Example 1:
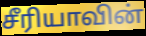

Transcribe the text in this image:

சீரியாவின்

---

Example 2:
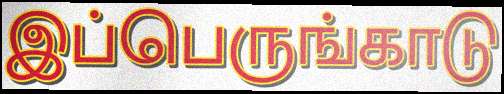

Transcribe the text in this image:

இப்பெருங்காடு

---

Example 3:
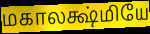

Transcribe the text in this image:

மகாலக்ஷ்மியே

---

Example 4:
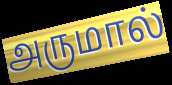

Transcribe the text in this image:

அருமால்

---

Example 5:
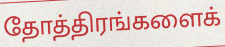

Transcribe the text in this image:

தோத்திரங்களைக்